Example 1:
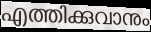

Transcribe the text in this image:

എത്തിക്കുവാനും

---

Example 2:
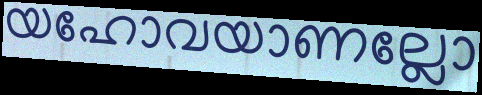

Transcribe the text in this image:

യഹോവയാണല്ലോ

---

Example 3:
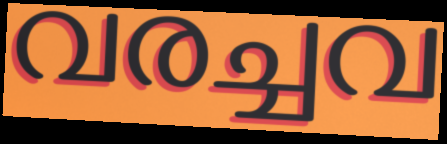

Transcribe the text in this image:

വരച്ചവ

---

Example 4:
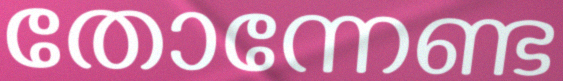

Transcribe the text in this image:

തോന്നേണ്ട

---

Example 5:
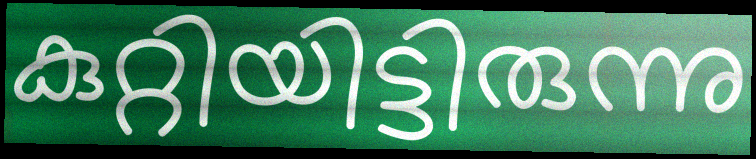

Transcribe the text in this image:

കുറ്റിയിട്ടിരുന്നു